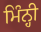
ਮਿੰਨ੍ਹੀ